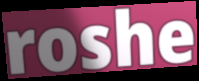
roshe